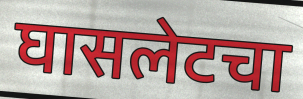
घासलेटचा